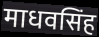
माधवसिंह